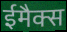
ईमैक्स